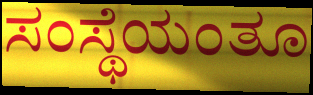
ಸಂಸ್ಥೆಯಂತೂ